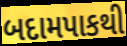
બદામપાકથી